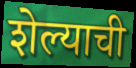
शेल्याची